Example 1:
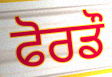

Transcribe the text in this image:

ਫੋਰਡੌ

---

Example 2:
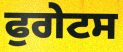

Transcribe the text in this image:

ਫੁਗੇਟਸ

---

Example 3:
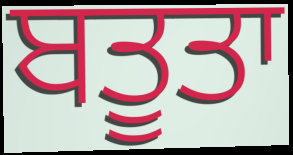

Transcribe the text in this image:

ਬਤੂਤਾ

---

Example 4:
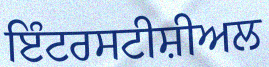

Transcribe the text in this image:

ਇੰਟਰਸਟੀਸ਼ੀਅਲ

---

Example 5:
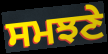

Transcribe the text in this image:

ਸਮਝਣੇ